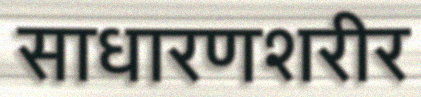
साधारणशरीर